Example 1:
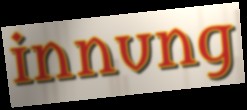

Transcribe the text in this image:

innung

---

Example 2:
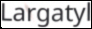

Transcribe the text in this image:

Largatyl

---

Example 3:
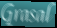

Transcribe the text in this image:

Grasal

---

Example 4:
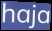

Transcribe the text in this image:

haja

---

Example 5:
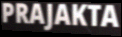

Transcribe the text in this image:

PRAJAKTA